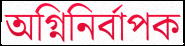
অগ্নিনিৰ্বাপক